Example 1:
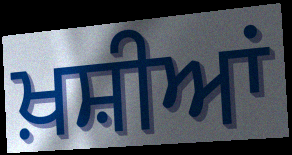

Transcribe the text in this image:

ਖ਼ਸ਼ੀਆਂ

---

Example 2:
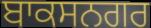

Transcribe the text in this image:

ਬਾਕਸਨਗਰ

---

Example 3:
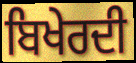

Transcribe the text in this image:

ਬਿਖੇਰਦੀ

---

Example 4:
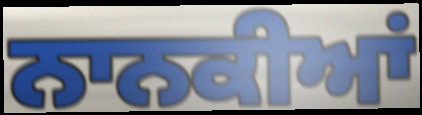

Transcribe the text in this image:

ਨਾਨਕੀਆਂ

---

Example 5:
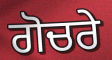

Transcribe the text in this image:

ਗੋਚਰੇ